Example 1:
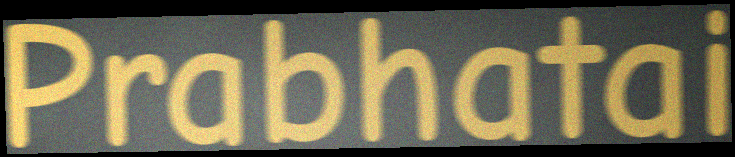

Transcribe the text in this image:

Prabhatai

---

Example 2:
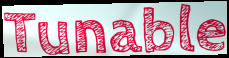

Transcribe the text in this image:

Tunable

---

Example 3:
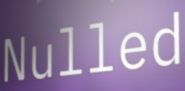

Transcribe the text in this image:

Nulled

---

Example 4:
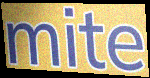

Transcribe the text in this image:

mite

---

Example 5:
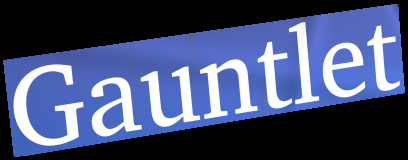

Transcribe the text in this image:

Gauntlet